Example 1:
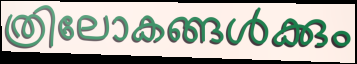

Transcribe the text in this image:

ത്രിലോകങ്ങൾക്കും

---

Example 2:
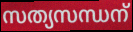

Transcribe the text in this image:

സത്യസന്ധന്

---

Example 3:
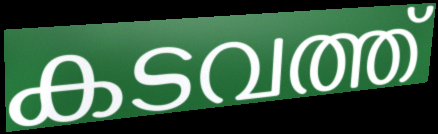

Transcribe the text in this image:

കടവത്ത്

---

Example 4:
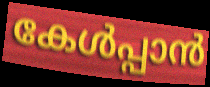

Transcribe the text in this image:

കേൾപ്പാൻ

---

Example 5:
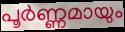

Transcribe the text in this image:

പൂർണ്ണമായും